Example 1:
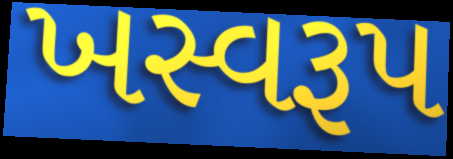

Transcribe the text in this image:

ખસ્વરૂપ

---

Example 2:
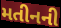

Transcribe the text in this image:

મતીનની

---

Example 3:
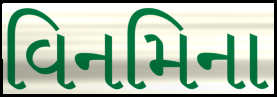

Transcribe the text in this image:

વિનમિના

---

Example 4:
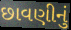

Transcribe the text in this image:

છાવણીનું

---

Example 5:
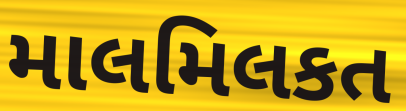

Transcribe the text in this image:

માલમિલકત